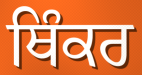
ਥਿੰਕਰ